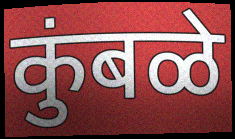
कुंबळे